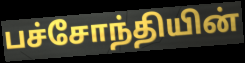
பச்சோந்தியின்